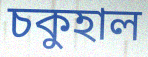
চকুহাল